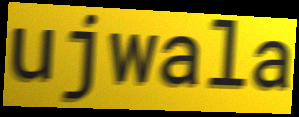
ujwala